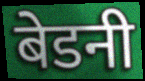
बेडनी